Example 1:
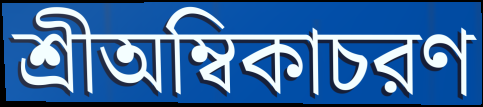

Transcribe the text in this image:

শ্রীঅম্বিকাচরণ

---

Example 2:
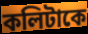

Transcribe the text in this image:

কলিটাকে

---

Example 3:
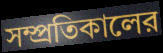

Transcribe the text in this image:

সম্প্রতিকালের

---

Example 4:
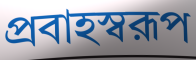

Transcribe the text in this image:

প্রবাহস্বরূপ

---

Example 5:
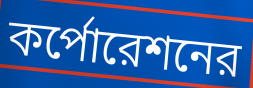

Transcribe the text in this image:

কর্পোরেশনের